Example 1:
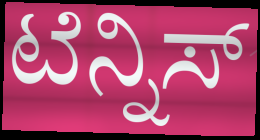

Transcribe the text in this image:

ಟೆನ್ನಿಸ್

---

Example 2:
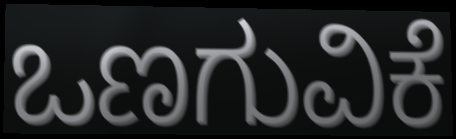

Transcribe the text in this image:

ಒಣಗುವಿಕೆ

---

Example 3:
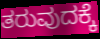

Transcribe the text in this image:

ತರುವುದಕ್ಕೆ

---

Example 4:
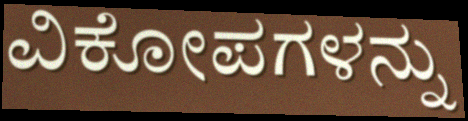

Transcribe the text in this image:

ವಿಕೋಪಗಳನ್ನು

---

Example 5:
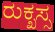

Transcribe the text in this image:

ರುಕ್ಖಸ್ಸ